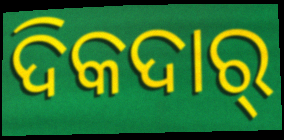
ଦିକଦାର୍